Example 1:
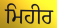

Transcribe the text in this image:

ਮਿਹੀਰ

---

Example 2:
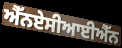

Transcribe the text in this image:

ਐੱਨਏਸੀਆਈਐੱਨ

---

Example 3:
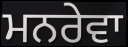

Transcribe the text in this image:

ਮਨਰੇਵਾ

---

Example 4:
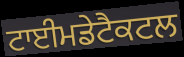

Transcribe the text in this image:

ਟਾਈਮਡੇਟੈਕਟਲ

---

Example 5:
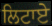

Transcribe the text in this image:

ਲਿਟਾਏ